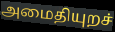
அமைதியுறச்